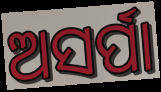
ଅସର୍ପା